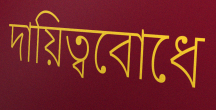
দায়িত্ববোধে